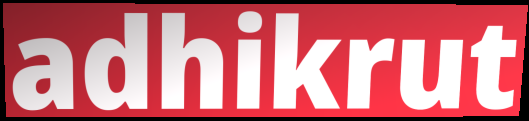
adhikrut